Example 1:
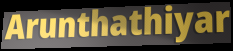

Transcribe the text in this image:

Arunthathiyar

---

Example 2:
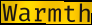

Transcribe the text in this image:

Warmth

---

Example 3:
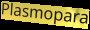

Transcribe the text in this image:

Plasmopara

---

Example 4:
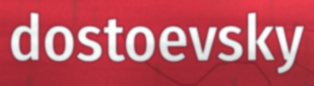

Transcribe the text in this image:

dostoevsky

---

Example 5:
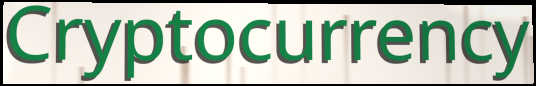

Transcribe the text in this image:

Cryptocurrency